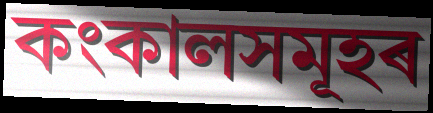
কংকালসমূহৰ